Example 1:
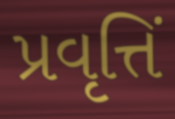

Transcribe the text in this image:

પ્રવૃત્તિં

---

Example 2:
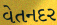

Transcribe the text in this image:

વેતનદર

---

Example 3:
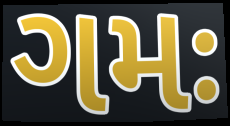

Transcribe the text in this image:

ગમઃ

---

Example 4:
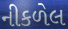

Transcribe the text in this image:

નીકળેલ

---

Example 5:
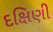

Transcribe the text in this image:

દક્ષિણી